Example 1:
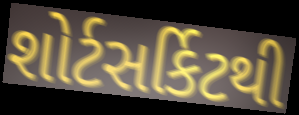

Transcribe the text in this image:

શોર્ટસર્કિટથી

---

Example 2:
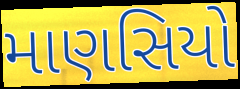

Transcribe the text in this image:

માણસિયો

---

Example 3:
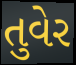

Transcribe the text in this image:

તુવેર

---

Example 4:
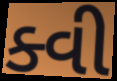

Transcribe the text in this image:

ક્વી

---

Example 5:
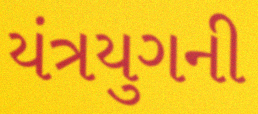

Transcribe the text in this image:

યંત્રયુગની